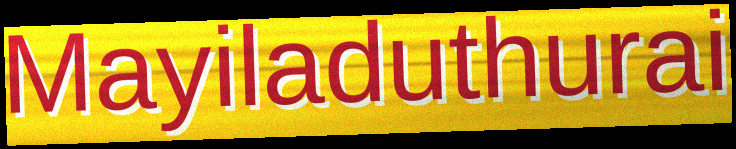
Mayiladuthurai